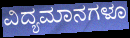
ವಿದ್ಯಮಾನಗಳೂ